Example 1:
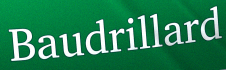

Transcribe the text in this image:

Baudrillard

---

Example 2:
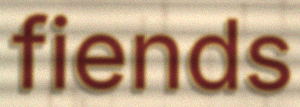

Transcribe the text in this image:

fiends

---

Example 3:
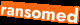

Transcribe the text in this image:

ransomed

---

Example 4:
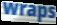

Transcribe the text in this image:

wraps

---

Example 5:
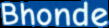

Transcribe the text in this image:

Bhonde